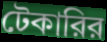
টেকারির